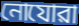
নোযোৱা